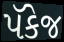
પૅકેજ